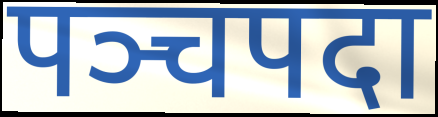
पञ्चपदा